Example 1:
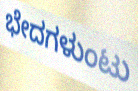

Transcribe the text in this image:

ಭೇದಗಳುಂಟು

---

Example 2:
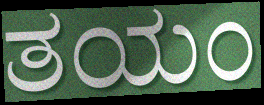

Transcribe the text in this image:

ತಯಂ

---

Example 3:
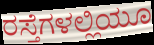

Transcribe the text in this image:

ರಸ್ತೆಗಳಲ್ಲಿಯೂ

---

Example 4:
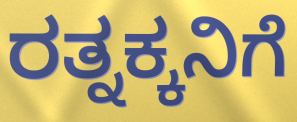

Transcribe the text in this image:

ರತ್ನಕ್ಕನಿಗೆ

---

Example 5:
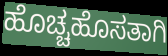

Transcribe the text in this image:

ಹೊಚ್ಚಹೊಸತಾಗಿ